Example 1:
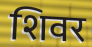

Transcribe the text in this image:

शिवर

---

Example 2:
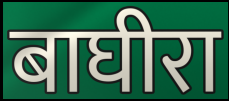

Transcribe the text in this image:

बाघीरा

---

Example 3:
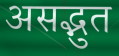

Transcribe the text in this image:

असद्भुत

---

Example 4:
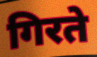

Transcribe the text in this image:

गिरते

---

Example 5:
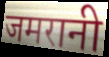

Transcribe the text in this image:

जमरानी